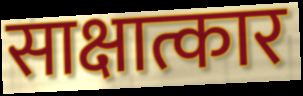
साक्षात्कार